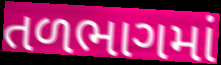
તળભાગમાં